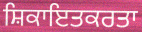
ਸ਼ਿਕਾਇਤਕਰਤਾ